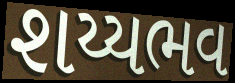
શય્યભવ